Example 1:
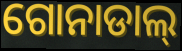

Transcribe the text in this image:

ଗୋନାଡାଲ୍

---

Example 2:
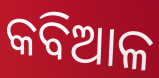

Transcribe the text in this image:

କବିଆଳ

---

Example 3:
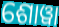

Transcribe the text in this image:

ଶୋୱା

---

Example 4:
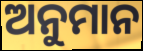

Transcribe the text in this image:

ଅନୁମାନ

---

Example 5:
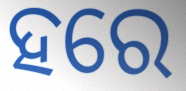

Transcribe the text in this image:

ହରେ